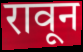
रावून